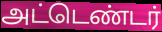
அட்டெண்டர்